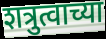
शत्रुत्वाच्या